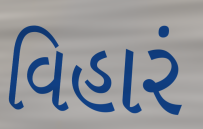
વિહારં